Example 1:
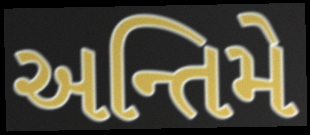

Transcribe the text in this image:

અન્તિમે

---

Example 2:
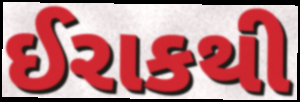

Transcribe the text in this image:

ઈરાકથી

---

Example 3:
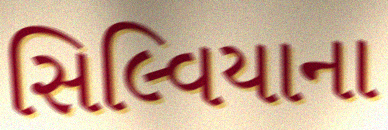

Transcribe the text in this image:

સિલ્વિયાના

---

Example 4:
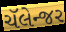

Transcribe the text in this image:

ચૅલેન્જર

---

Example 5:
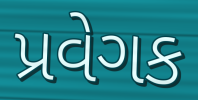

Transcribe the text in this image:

પ્રવેગક